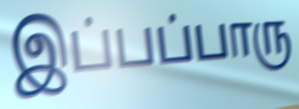
இப்பப்பாரு